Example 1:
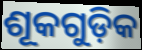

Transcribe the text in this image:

ଶୂକଗୁଡ଼ିକ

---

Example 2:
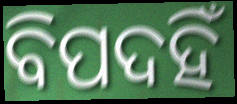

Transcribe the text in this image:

ବିପଦହିଁ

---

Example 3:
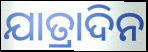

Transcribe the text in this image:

ଯାତ୍ରାଦିନ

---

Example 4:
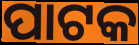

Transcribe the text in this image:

ପାଟକ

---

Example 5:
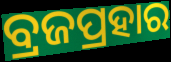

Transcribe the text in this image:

ବ୍ରଜପ୍ରହାର